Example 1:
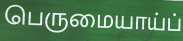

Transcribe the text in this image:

பெருமையாய்ப்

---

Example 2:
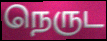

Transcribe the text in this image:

நெருட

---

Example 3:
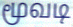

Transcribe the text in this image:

மூவடி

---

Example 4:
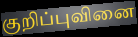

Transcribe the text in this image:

குறிப்புவினை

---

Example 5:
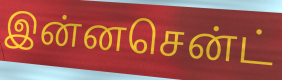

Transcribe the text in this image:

இன்னசென்ட்